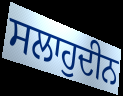
ਸਲਾਹੁਦੀਨ